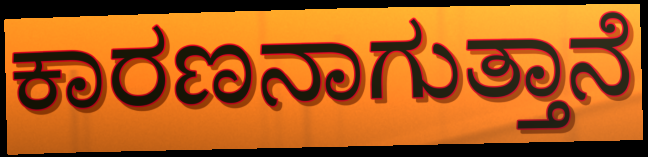
ಕಾರಣನಾಗುತ್ತಾನೆ